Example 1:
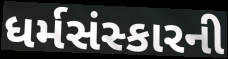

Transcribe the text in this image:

ધર્મસંસ્કારની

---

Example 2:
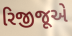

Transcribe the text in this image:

રિજીજૂએ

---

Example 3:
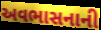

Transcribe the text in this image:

અવભાસનાની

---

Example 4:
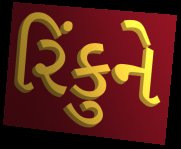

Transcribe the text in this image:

રિંકુને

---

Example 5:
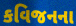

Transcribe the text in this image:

કવિજનના